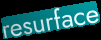
resurface